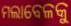
ମଲାବେଳକୁ